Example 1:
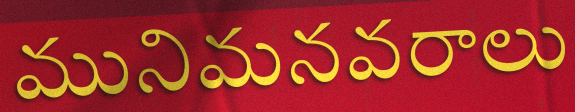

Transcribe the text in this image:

మునిమనవరాలు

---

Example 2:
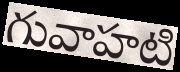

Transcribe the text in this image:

గువాహటి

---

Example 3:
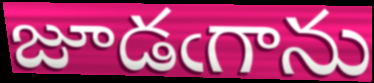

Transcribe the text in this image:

జూడఁగాను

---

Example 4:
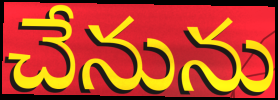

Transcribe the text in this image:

చేనును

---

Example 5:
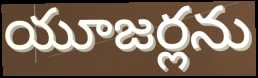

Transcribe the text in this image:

యూజర్లను